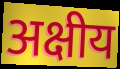
अक्षीय